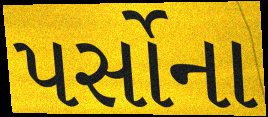
પર્સોના